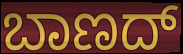
ಬಾಣದ್